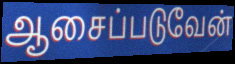
ஆசைப்படுவேன்